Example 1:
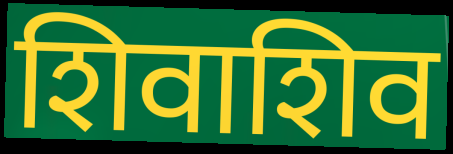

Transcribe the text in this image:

शिवाशिव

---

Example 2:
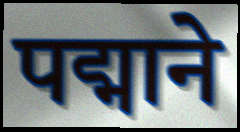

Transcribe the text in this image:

पद्माने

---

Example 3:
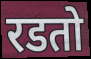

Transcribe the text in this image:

रडतो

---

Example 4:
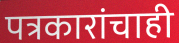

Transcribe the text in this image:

पत्रकारांचाही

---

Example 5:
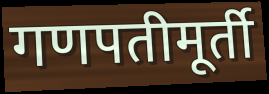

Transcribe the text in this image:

गणपतीमूर्ती